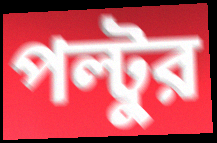
পল্টুর